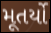
મૂતર્યો